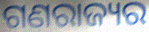
ଗଣରାଜ୍ୟର